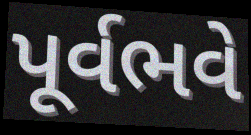
પૂર્વભવે